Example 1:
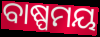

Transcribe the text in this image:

ବାଷ୍ପମୟ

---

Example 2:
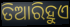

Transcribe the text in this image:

ତିଆରିହୁଏ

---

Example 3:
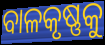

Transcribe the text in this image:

ବାଳକୃଷ୍ଣକୁ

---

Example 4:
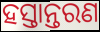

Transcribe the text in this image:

ହସ୍ତାନ୍ତରଣ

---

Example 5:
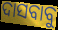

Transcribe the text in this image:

ଦାସବାବୁ